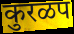
कुरळप